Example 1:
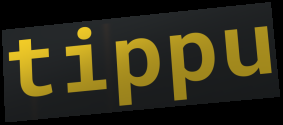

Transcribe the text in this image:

tippu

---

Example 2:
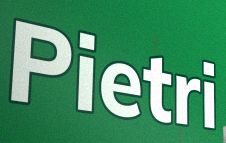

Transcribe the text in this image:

Pietri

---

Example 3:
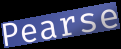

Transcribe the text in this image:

Pearse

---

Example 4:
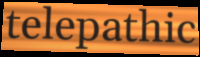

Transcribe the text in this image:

telepathic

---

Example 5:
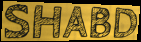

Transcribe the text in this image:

SHABD